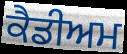
ਕੈਡੀਅਮ